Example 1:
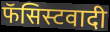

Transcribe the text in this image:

फॅसिस्टवादी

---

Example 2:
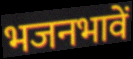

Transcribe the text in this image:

भजनभावें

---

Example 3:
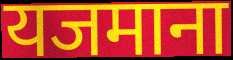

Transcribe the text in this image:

यजमाना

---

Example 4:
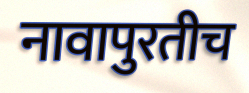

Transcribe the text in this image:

नावापुरतीच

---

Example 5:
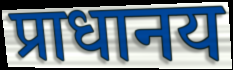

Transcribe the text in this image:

प्राधानय